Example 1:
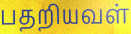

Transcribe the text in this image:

பதறியவள்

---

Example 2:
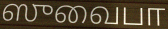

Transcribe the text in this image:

ஸுவைபா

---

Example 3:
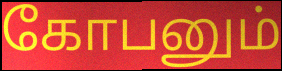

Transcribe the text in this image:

கோபனும்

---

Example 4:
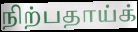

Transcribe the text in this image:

நிற்பதாய்க்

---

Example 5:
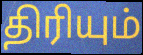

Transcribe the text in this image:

திரியும்